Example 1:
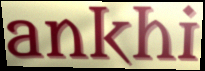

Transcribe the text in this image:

ankhi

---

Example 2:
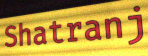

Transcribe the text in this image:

Shatranj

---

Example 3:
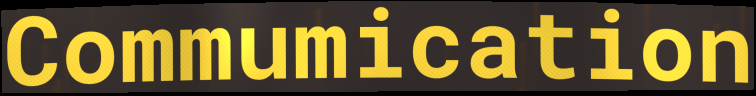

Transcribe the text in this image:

Commumication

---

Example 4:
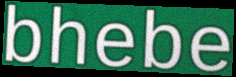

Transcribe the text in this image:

bhebe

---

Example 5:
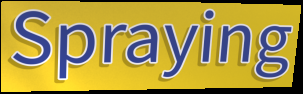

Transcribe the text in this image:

Spraying